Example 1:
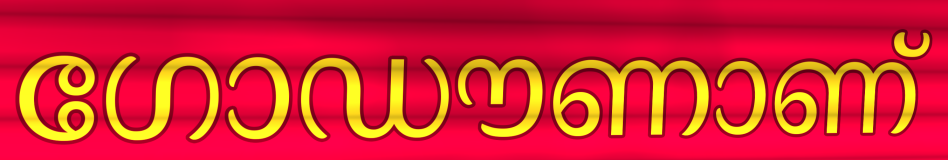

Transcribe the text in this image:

ഗോഡൗണാണ്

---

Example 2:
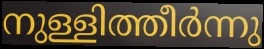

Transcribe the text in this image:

നുള്ളിത്തീർന്നു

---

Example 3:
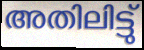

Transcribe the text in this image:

അതിലിട്ടു്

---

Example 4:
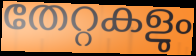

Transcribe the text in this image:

തേറ്റകളും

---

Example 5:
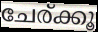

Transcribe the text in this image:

ചേര്ക്കൂ